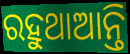
ରହୁଥାଆନ୍ତି